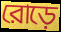
রোড়ে